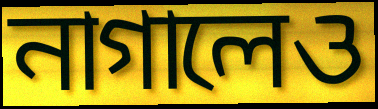
নাগালেও